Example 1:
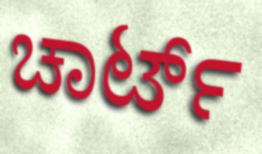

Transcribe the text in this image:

ಚಾರ್ಟ್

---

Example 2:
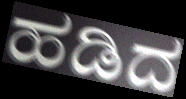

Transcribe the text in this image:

ಹಡಿದ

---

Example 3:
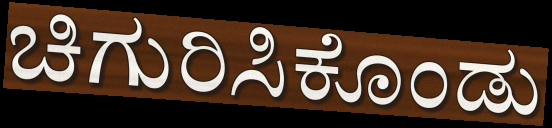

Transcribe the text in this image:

ಚಿಗುರಿಸಿಕೊಂಡು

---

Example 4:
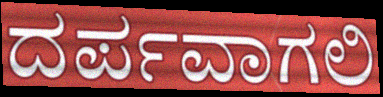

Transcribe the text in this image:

ದರ್ಪವಾಗಲಿ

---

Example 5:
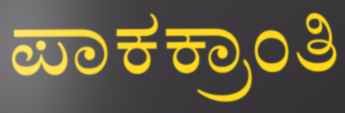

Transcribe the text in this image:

ಪಾಕಕ್ರಾಂತಿ